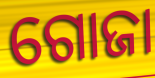
ଗୋଜା